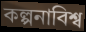
কল্পনাবিশ্ব